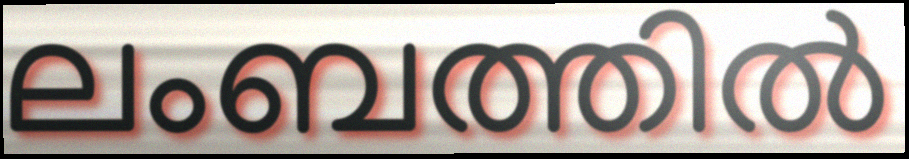
ലംബത്തിൽ